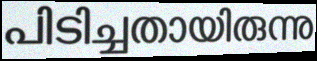
പിടിച്ചതായിരുന്നു